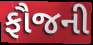
ફૌજની